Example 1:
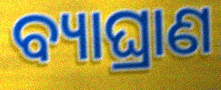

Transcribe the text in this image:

ବ୍ୟାଘ୍ରାଣ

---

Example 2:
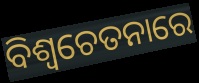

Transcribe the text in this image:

ବିଶ୍ୱଚେତନାରେ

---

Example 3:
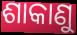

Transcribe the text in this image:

ଶାକାଣୁ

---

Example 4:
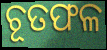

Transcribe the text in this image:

ଚୂତଫଳ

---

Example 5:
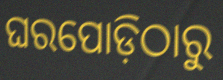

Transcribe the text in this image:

ଘରପୋଡ଼ିଠାରୁ